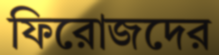
ফিরোজদের